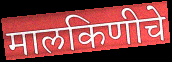
मालकिणीचे